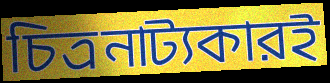
চিত্রনাট্যকারই